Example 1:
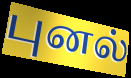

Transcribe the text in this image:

புனல்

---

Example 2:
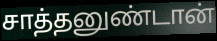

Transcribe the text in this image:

சாத்தனுண்டான்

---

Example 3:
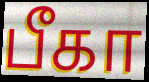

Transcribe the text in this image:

பீகா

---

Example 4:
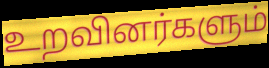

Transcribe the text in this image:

உறவினர்களும்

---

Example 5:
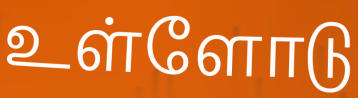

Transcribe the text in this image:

உள்ளோடு